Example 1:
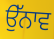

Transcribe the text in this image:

ਉੱਨਾਵ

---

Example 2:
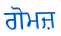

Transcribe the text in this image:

ਗੋਮਜ਼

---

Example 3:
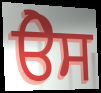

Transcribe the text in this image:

ੳੇਸ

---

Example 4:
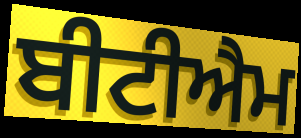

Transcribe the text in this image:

ਬੀਟੀਐਮ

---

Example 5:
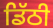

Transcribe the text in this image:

ਡਿੱਠੀ